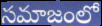
సమాజంలో